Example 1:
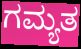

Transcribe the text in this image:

ಗಮ್ಯತ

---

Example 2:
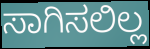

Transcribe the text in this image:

ಸಾಗಿಸಲಿಲ್ಲ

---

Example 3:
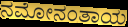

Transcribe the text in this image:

ನಮೋನಂತಾಯ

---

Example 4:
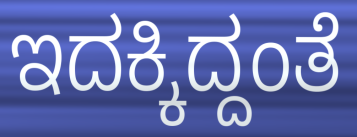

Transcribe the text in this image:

ಇದಕ್ಕಿದ್ದಂತೆ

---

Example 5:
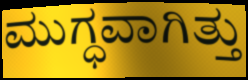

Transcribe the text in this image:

ಮುಗ್ಧವಾಗಿತ್ತು